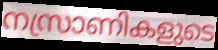
നസ്രാണികളുടെ